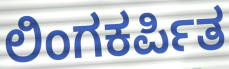
ಲಿಂಗಕರ್ಪಿತ